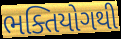
ભક્તિયોગથી